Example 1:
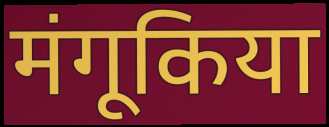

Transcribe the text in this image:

मंगूकिया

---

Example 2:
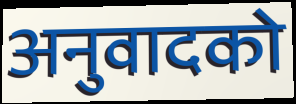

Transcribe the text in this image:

अनुवादको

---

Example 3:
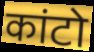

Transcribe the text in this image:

कांटो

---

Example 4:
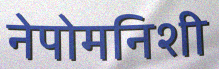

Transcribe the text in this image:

नेपोमनिशी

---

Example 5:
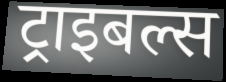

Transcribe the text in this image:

ट्राइबल्स